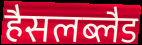
हैसलब्लैड